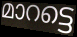
മാറട്ടെ